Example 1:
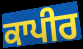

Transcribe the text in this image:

ਕਾਪੀਰ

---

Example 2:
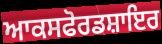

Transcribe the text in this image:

ਆਕਸਫੋਰਡਸ਼ਾਇਰ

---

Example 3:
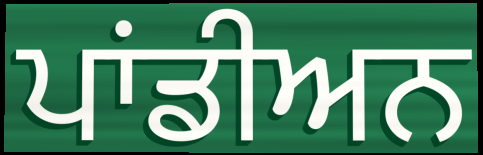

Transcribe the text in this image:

ਪਾਂਡੀਅਨ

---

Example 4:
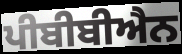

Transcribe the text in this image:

ਪੀਬੀਬੀਐਨ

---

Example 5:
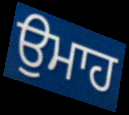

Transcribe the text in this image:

ਉਮਾਹ